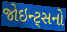
જોઇન્ટ્સનો